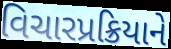
વિચારપ્રક્રિયાને